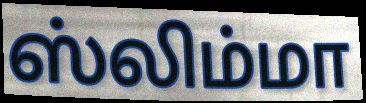
ஸ்லிம்மா